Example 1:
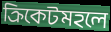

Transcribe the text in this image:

ক্রিকেটমহলে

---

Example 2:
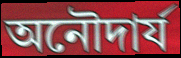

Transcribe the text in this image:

অনৌদার্য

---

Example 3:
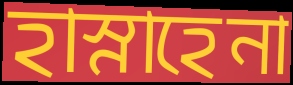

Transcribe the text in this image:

হাস্নাহেনা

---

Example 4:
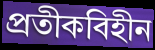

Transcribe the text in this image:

প্রতীকবিহীন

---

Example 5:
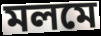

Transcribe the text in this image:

মলমে